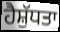
ਹੈਸ਼ੁੱਧਤਾ